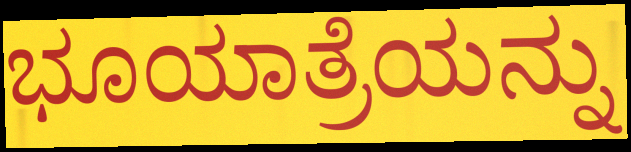
ಭೂಯಾತ್ರೆಯನ್ನು